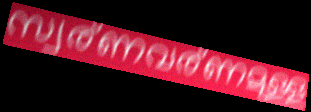
സ്വര്ണവര്ണമുള്ള